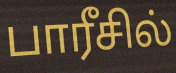
பாரீசில்